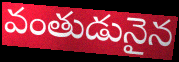
వంతుడునైన